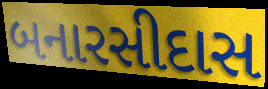
બનારસીદાસ